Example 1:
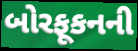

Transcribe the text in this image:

બોરફૂકનની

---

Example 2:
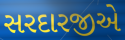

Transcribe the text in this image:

સરદારજીએ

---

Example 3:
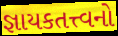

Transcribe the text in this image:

જ્ઞાયકતત્ત્વનો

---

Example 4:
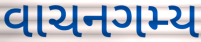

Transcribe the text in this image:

વાચનગમ્ય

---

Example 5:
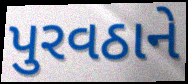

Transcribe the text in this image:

પુરવઠાને